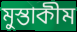
মুস্তাকীম